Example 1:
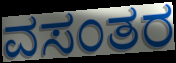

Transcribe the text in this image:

ವಸಂತರ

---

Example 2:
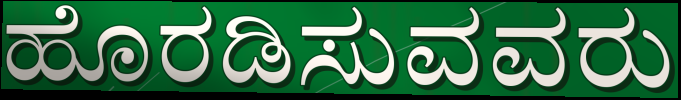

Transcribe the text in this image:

ಹೊರಡಿಸುವವರು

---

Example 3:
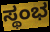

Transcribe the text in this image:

ಸ್ಥಂಭ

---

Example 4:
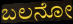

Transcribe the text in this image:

ಬಲನೋ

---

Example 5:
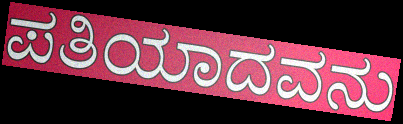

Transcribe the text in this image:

ಪತಿಯಾದವನು